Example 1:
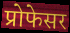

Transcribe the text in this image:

प्रोफेसर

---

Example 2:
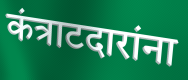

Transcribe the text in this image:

कंत्राटदारांना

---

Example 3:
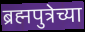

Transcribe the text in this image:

ब्रह्मपुत्रेच्या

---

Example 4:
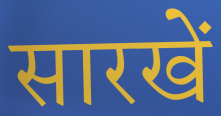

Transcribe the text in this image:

सारखें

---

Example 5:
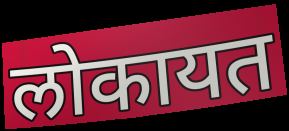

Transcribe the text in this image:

लोकायत